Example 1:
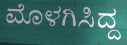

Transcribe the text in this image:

ಮೊಳಗಿಸಿದ್ದ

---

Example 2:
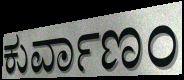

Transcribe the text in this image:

ಕುರ್ವಾಣಂ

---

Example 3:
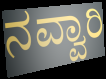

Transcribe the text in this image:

ನವ್ವಾರಿ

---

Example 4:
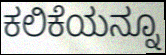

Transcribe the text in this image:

ಕಲಿಕೆಯನ್ನೂ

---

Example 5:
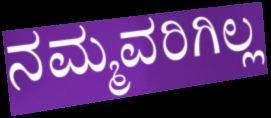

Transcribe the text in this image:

ನಮ್ಮವರಿಗಿಲ್ಲ